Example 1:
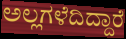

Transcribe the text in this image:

ಅಲ್ಲಗಳೆದಿದ್ದಾರೆ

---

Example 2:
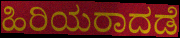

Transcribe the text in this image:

ಹಿರಿಯರಾದಡೆ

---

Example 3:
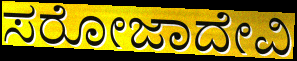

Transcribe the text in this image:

ಸರೋಜಾದೇವಿ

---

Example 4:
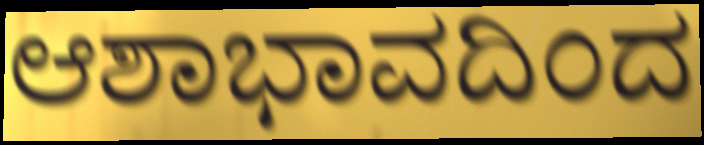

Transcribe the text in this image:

ಆಶಾಭಾವದಿಂದ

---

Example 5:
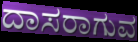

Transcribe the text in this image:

ದಾಸರಾಗುವ